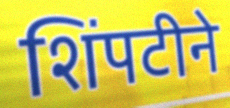
शिंपटीने